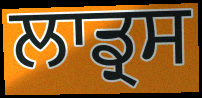
ਲਾਡ੍ਰਸ